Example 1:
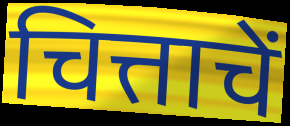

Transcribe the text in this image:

चित्ताचें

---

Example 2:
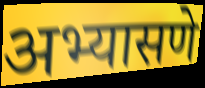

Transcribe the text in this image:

अभ्यासणे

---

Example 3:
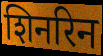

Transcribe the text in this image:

शिनरिन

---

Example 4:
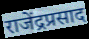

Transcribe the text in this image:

राजेंद्रप्रसाद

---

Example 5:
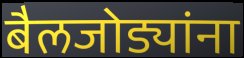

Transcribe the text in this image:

बैलजोड्यांना